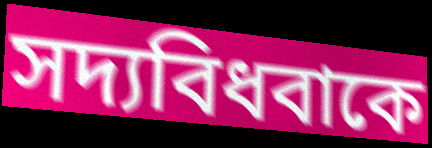
সদ্যবিধবাকে